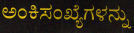
ಅಂಕಿಸಂಖ್ಯೆಗಳನ್ನು